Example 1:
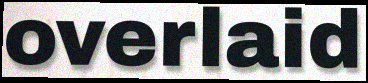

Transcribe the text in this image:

overlaid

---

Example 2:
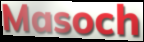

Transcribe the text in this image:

Masoch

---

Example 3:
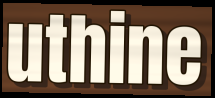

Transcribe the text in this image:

uthine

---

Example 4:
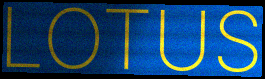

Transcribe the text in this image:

LOTUS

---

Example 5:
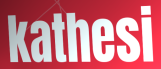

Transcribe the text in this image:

kathesi